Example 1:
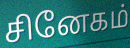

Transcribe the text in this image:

சினேகம்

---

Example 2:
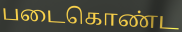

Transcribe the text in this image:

படைகொண்ட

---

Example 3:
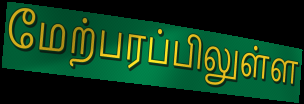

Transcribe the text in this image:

மேற்பரப்பிலுள்ள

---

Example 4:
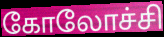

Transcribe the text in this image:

கோலோச்சி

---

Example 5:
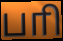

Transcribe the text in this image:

பரி